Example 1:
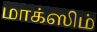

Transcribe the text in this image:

மாக்ஸிம்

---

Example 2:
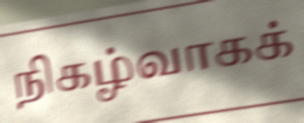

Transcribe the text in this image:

நிகழ்வாகக்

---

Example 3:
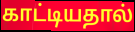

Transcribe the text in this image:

காட்டியதால்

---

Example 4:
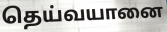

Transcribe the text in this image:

தெய்வயானை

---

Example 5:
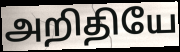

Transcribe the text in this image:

அறிதியே